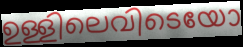
ഉള്ളിലെവിടെയോ